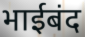
भाईबंद